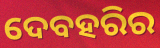
ଦେବହରିର